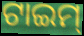
ଟାଇମ୍